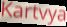
Kartvya